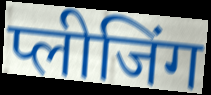
प्लीजिंग